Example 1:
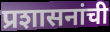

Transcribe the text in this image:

प्रशासनांची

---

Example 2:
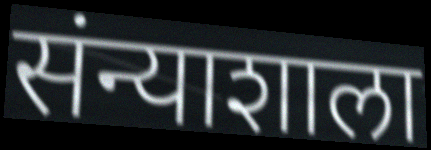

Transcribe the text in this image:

संन्याशाला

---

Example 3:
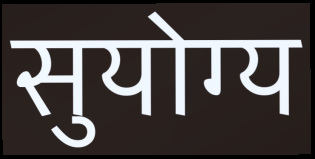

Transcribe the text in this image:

सुयोग्य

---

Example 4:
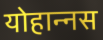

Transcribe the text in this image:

योहान्नस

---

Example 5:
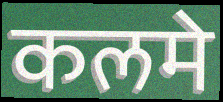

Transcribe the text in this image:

कलमे